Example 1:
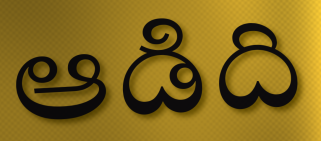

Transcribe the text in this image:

ఆడిది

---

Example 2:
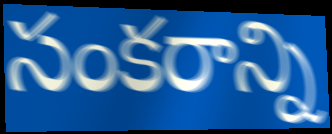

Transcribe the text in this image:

సంకరాన్ని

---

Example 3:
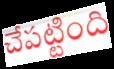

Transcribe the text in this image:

చేపట్టింది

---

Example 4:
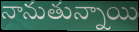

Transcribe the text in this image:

నానుతున్నాయి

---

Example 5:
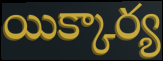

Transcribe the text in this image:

యిక్కార్య